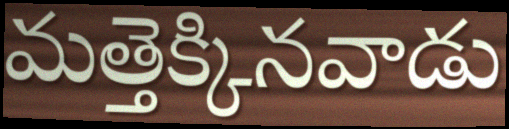
మత్తెక్కినవాడు